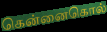
கென்னைகொல்